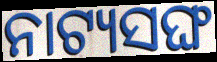
ନାଟ୍ୟସଙ୍ଘ